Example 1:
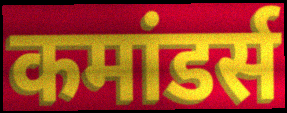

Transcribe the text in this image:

कमांडर्स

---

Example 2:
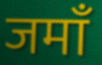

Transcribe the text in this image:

जमाँ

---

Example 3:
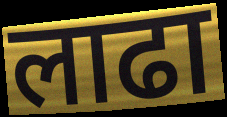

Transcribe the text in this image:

लाढा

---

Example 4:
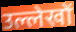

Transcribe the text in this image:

उल्लेखों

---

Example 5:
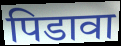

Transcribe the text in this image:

पिडावा